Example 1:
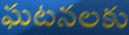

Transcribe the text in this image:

ఘటనలకు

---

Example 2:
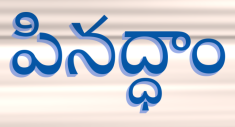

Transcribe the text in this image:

పినద్ధాం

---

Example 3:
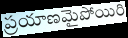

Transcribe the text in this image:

ప్రయాణమైపోయిరి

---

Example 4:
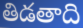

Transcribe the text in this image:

తిడతాది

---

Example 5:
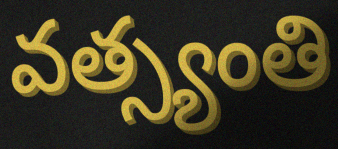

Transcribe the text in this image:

వత్స్యంతి